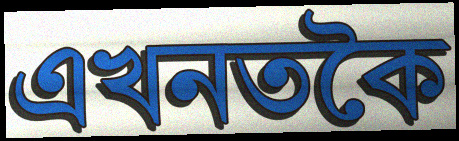
এখনতকৈ